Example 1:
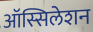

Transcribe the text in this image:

ऑस्सिलेशन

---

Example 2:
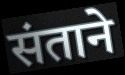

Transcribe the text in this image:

संताने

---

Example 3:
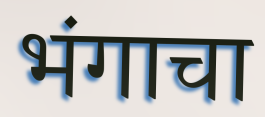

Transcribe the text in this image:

भंगाचा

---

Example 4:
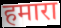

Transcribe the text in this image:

हमारा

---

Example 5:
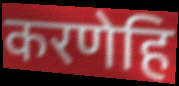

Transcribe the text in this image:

करणेहि